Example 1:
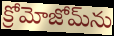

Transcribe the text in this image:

క్రోమోజోమ్‌ను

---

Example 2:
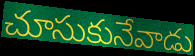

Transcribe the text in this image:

చూసుకునేవాడు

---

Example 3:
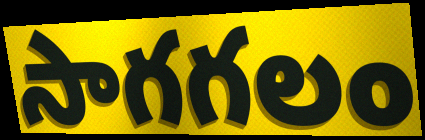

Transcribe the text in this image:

సాగగలం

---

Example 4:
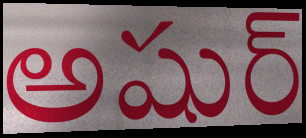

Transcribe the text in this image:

అషుర్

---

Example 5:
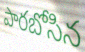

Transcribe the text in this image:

పారబోసిన